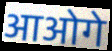
आओगे